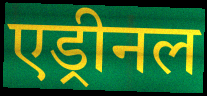
एड्रीनल